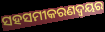
ସହସମୀକରଣଦ୍ୱୟର